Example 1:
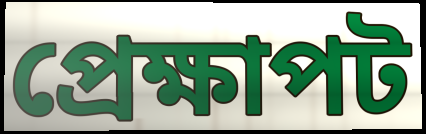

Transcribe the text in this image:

প্ৰেক্ষাপট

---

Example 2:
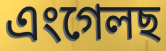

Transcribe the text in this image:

এংগেলছ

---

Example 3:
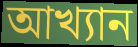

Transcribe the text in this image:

আখ্যান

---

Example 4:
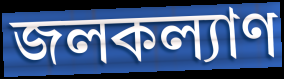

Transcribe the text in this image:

জলকল্যাণ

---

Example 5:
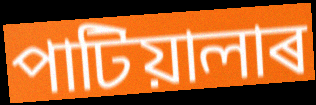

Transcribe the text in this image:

পাটিয়ালাৰ